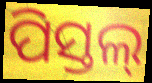
ପିସ୍ତଲ୍